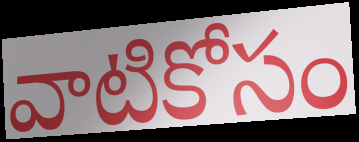
వాటికోసం